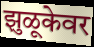
झुळूकेवर